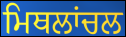
ਮਿਥਲਾਂਚਲ